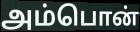
அம்பொன்